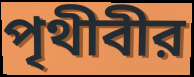
পৃথীবীর